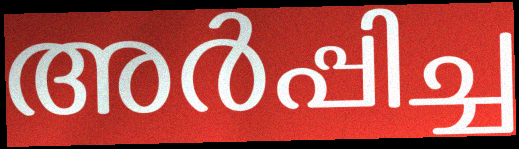
അർപ്പിച്ച